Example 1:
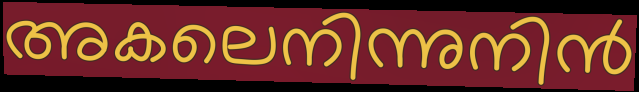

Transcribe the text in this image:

അകലെനിന്നുനിൻ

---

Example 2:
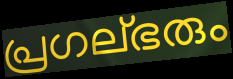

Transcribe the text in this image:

പ്രഗല്ഭരും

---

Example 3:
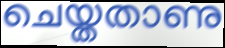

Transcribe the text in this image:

ചെയ്തതാണു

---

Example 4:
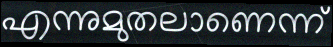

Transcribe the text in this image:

എന്നുമുതലാണെന്ന്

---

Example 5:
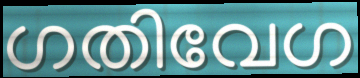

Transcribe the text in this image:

ഗതിവേഗ